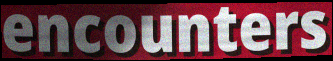
encounters